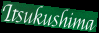
Itsukushima